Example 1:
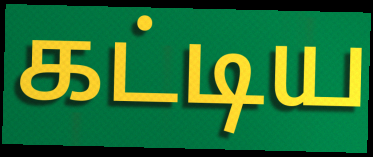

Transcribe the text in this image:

கட்டிய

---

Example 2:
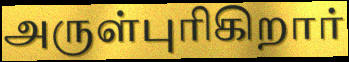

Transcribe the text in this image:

அருள்புரிகிறார்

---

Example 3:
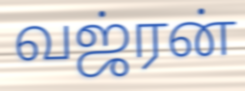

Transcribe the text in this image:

வஜ்ரன்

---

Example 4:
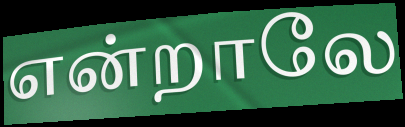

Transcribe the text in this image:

என்றாலே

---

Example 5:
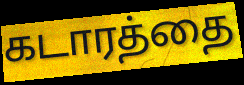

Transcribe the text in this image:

கடாரத்தை